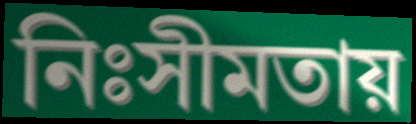
নিঃসীমতায়